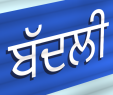
ਬੱਦਲੀ